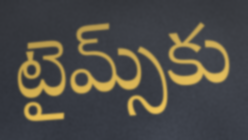
టైమ్స్‌కు